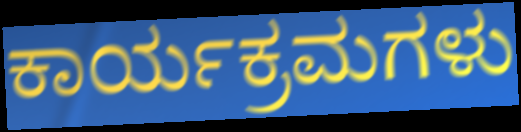
ಕಾರ್ಯಕ್ರಮಗಳು